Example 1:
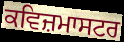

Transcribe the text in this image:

ਕਵਿਜ਼ਮਾਸਟਰ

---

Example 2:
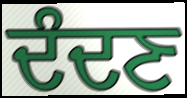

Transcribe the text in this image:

ਦੰਦਣ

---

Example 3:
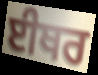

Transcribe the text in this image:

ਈਥਰ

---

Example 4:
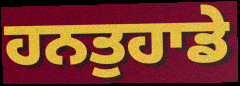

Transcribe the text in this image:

ਹਨਤੁਹਾਡੇ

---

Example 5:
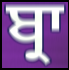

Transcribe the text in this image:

ਬ੍ਰਾ